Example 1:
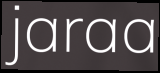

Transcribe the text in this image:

jaraa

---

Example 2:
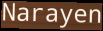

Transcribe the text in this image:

Narayen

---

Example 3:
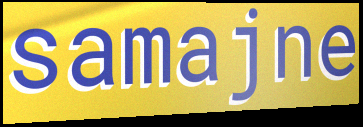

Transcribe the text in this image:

samajne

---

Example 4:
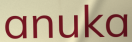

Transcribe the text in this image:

anuka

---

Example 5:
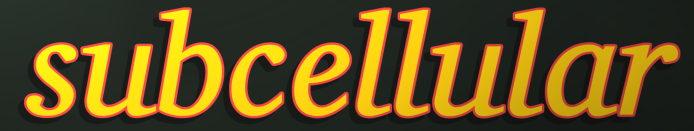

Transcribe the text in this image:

subcellular